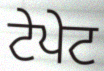
ਟੇਪੇਟ